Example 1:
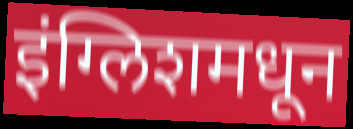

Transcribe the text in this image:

इंग्लिशमधून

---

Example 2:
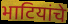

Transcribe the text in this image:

भाटियांचे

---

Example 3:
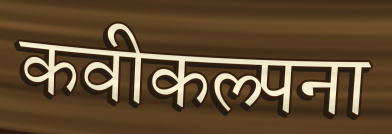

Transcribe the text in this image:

कवीकल्पना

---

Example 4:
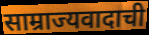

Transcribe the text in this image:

साम्राज्यवादाची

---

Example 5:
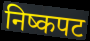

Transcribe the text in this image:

निष्कपट